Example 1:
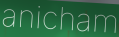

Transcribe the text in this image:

anicham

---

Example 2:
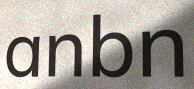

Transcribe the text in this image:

anbn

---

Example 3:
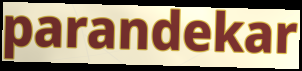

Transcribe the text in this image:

parandekar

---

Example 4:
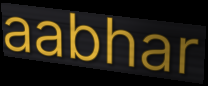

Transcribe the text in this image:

aabhar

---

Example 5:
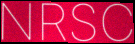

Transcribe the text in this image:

NRSC